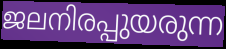
ജലനിരപ്പുയരുന്ന